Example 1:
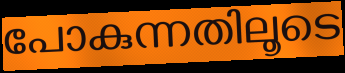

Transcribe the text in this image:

പോകുന്നതിലൂടെ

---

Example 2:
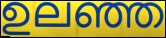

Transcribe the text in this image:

ഉലഞ്ഞ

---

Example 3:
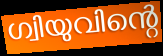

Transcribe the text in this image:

ഗ്വിയുവിന്റെ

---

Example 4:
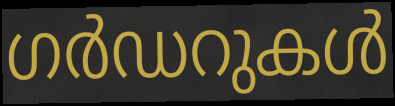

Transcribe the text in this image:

ഗർഡറുകൾ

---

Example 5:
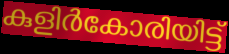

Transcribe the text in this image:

കുളിർകോരിയിട്ട്